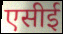
एसीई